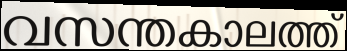
വസന്തകാലത്ത്